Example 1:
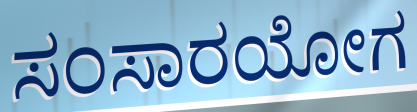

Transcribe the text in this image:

ಸಂಸಾರಯೋಗ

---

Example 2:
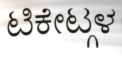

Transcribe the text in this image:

ಟಿಕೇಟ್ಗಳ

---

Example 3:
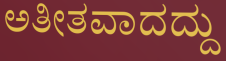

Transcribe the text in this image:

ಅತೀತವಾದದ್ದು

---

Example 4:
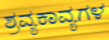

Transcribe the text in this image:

ಶ್ರವ್ಯಕಾವ್ಯಗಳ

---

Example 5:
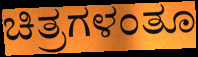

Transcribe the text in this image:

ಚಿತ್ರಗಳಂತೂ